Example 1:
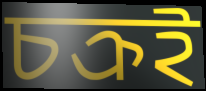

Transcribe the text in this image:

চক্ৰই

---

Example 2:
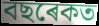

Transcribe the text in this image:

বছৰেকত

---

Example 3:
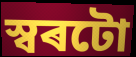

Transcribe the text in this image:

স্বৰটো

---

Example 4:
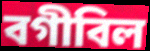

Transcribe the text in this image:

বগীবিল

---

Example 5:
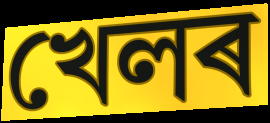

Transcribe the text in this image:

খেলৰ